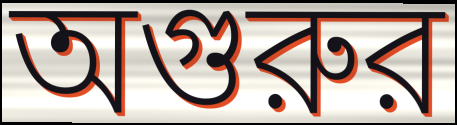
অগুরুর